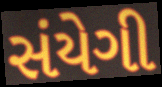
સંયેગી